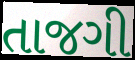
તાજગી